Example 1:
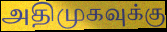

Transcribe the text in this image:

அதிமுகவுக்கு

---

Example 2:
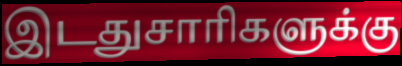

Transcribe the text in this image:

இடதுசாரிகளுக்கு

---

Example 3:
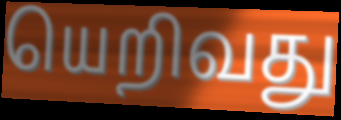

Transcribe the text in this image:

யெறிவது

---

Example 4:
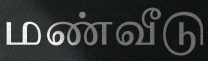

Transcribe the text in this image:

மண்வீடு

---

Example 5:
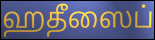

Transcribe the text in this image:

ஹதீஸைப்